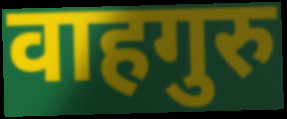
वाहगुरु